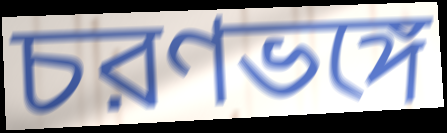
চরণভঙ্গে